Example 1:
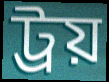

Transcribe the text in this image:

ট্ৰয়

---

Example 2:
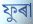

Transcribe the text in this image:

ফুৰা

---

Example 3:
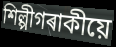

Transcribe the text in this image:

শিল্পীগৰাকীয়ে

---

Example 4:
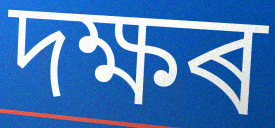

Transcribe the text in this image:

দক্ষৰ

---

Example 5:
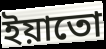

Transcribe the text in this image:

ইয়াতো